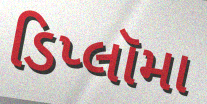
ડિપ્લૉમા